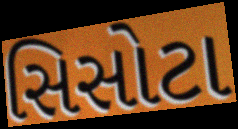
સિસોટા